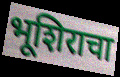
भूशिराचा